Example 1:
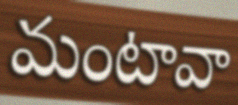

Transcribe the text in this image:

మంటావా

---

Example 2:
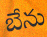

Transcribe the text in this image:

బేను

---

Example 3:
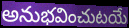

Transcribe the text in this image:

అనుభవించుటయే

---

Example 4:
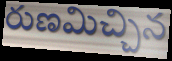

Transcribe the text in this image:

రుణమిచ్చిన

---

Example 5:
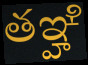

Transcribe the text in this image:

తఞ్హి